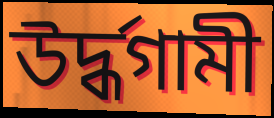
উৰ্দ্ধগামী